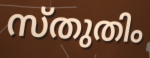
സ്തുതിം